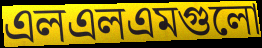
এলএলএমগুলো